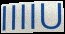
IIIIU